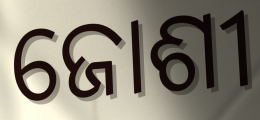
ଜୋଶୀ